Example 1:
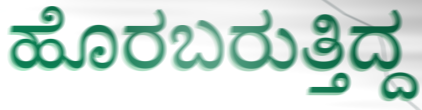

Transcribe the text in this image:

ಹೊರಬರುತ್ತಿದ್ದ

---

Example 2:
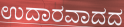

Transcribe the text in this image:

ಉದಾರವಾದದ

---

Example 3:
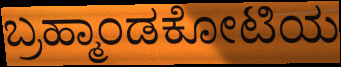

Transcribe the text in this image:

ಬ್ರಹ್ಮಾಂಡಕೋಟಿಯ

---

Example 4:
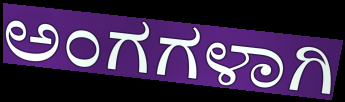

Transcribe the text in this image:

ಅಂಗಗಳಾಗಿ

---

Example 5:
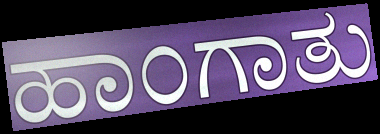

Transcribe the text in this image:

ಹಾಂಗಾತು